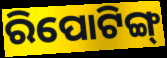
ରିପୋଟିଙ୍ଗ୍